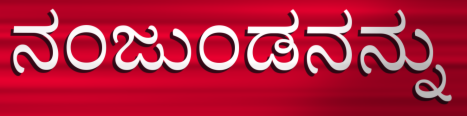
ನಂಜುಂಡನನ್ನು